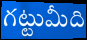
గట్టుమీది